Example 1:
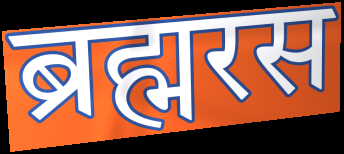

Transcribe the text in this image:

ब्रह्मरस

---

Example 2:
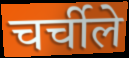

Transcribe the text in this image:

चर्चीले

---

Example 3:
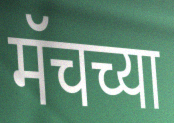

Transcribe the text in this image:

मॅचच्या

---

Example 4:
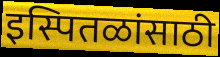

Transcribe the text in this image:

इस्पितळांसाठी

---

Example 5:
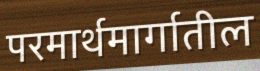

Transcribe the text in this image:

परमार्थमार्गातील